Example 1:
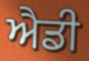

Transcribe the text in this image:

ਐਡੀ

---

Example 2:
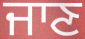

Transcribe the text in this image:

ਜਾਣ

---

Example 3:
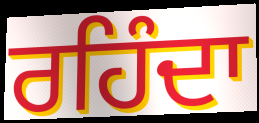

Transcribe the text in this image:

ਰਹਿੰਦਾ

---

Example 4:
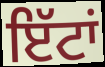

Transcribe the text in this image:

ਇੱਟਾਂ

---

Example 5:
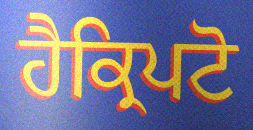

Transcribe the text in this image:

ਹੈਕ੍ਰਿਪਟੋ